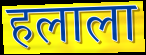
हलाला